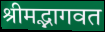
श्रीमद्भागवत